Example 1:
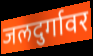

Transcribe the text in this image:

जलदुर्गावर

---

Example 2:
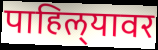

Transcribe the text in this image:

पाहिल्यावर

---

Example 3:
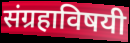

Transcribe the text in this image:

संग्रहाविषयी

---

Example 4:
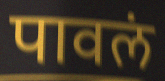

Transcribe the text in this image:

पावलं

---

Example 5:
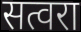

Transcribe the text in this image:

सत्वरा